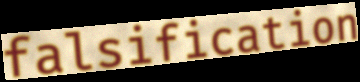
falsification